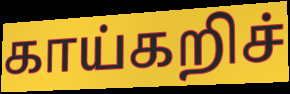
காய்கறிச்